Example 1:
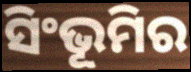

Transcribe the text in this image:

ସିଂଭୂମିର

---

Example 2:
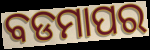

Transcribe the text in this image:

ବଡମାପର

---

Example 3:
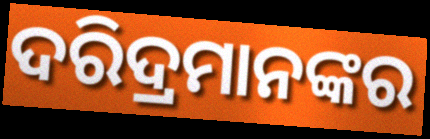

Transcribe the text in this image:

ଦରିଦ୍ରମାନଙ୍କର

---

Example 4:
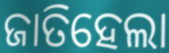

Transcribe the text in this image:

ଜାତିହେଲା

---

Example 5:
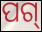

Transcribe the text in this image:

ପଗ୍